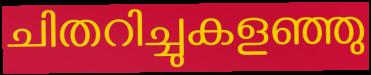
ചിതറിച്ചുകളഞ്ഞു